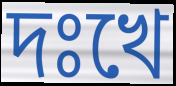
দঃখে